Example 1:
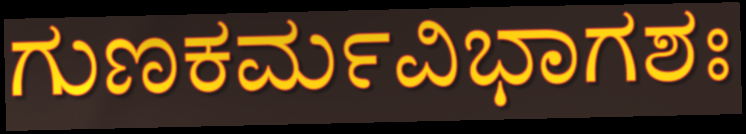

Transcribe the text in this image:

ಗುಣಕರ್ಮವಿಭಾಗಶಃ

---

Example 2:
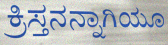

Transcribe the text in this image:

ಕ್ರಿಸ್ತನನ್ನಾಗಿಯೂ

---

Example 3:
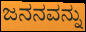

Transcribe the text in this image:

ಜನನವನ್ನು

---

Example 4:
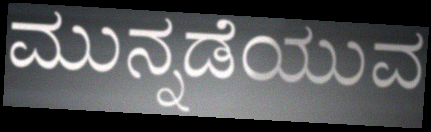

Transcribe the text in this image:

ಮುನ್ನಡೆಯುವ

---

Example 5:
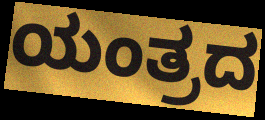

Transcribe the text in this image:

ಯಂತ್ರದ